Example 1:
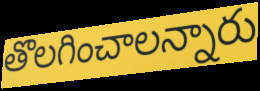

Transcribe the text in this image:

తొలగించాలన్నారు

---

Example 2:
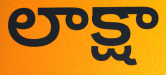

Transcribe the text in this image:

లాక్షా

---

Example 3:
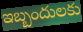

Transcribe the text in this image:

ఇబ్బందులకు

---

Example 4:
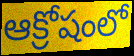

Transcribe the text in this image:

ఆక్రోషంలో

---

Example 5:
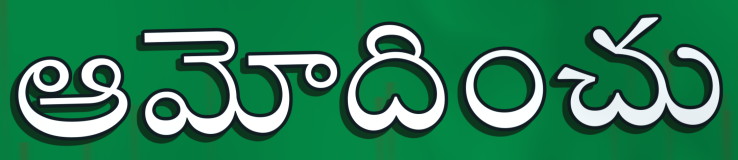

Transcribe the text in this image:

ఆమోదించు